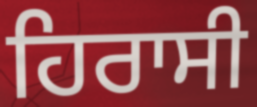
ਹਿਰਾਸੀ